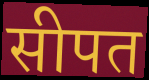
सीपत